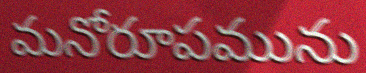
మనోరూపమును